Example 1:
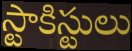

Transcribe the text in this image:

స్టాకిస్టులు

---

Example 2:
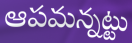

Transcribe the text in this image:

ఆపమన్నట్టు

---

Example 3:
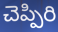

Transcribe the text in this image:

చెప్పిరి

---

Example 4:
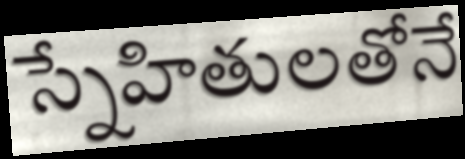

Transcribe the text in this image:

స్నేహితులతోనే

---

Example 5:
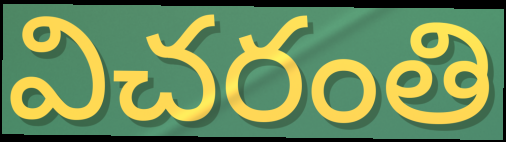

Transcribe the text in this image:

విచరంతి